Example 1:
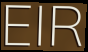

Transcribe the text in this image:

EIR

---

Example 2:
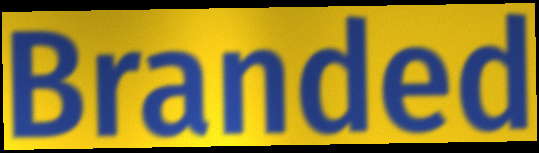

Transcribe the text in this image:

Branded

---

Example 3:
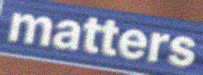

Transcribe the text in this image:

matters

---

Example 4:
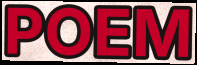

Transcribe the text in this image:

POEM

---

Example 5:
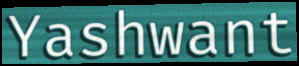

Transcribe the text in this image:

Yashwant